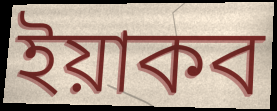
ইয়াকব